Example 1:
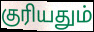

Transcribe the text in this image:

குரியதும்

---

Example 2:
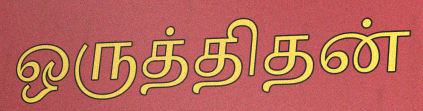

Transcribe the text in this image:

ஒருத்திதன்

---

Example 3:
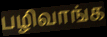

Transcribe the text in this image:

பழிவாங்க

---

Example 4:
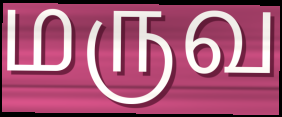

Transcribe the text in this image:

மருவ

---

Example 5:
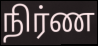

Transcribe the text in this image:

நிர்ண